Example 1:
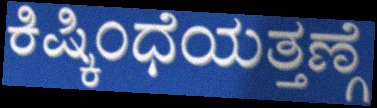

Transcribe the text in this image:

ಕಿಷ್ಕಿಂಧೆಯತ್ತಣ್ಗೆ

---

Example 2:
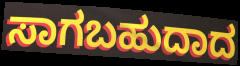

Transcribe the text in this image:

ಸಾಗಬಹುದಾದ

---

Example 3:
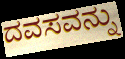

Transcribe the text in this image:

ದವಸವನ್ನು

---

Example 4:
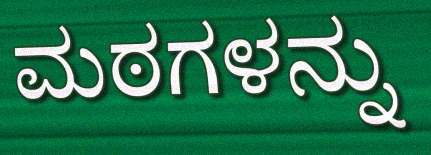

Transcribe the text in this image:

ಮಠಗಳನ್ನು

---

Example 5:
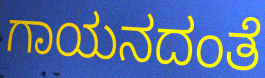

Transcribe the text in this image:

ಗಾಯನದಂತೆ